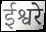
ईश्वरे